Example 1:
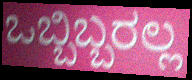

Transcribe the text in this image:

ಒಬ್ಬಿಬ್ಬರಲ್ಲ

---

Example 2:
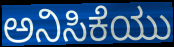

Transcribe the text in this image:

ಅನಿಸಿಕೆಯು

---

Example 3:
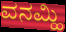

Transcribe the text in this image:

ವನಮ್ಹಿ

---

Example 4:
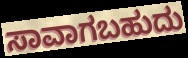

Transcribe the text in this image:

ಸಾವಾಗಬಹುದು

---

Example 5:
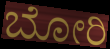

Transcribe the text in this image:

ಬೋರಿ